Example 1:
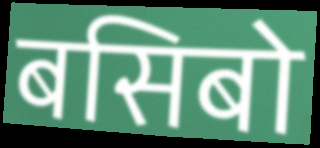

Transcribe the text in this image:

बसिबो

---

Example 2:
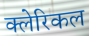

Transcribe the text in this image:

क्लेरिकल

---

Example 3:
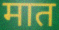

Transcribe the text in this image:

मात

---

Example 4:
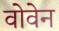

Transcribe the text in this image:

वोवेन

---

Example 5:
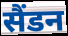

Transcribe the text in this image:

सैंडन